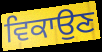
ਵਿਕਾਉਣ